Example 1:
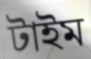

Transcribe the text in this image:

টাইম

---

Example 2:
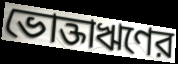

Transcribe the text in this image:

ভোক্তাঋণের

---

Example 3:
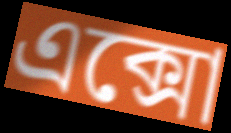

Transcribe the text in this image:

এক্সো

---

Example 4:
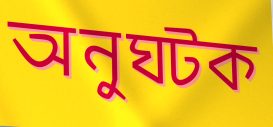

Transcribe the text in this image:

অনুঘটক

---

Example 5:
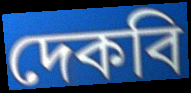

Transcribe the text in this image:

দেকবি